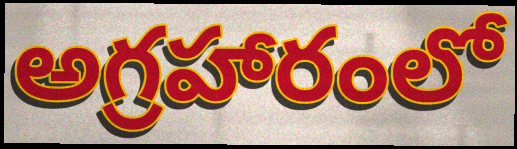
అగ్రహారంలో